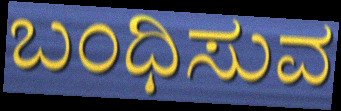
ಬಂಧಿಸುವ